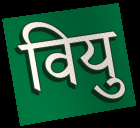
वियु